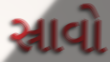
સ્રાવો